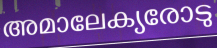
അമാലേക്യരോടു